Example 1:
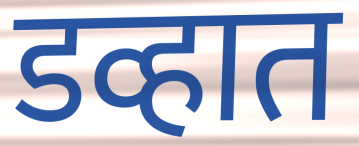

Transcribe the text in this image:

डव्हात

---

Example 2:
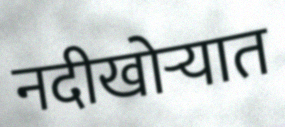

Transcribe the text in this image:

नदीखोर्‍यात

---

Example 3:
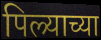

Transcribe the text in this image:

पिल्याच्या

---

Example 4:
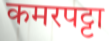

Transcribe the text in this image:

कमरपट्टा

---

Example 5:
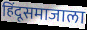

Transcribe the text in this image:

हिंदूसमाजाला